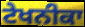
ਟੇਖਨੀਕਾ